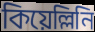
কিয়েল্লিনি